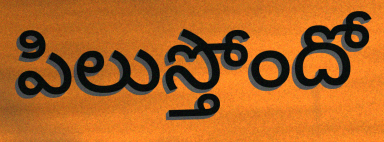
పిలుస్తోందో